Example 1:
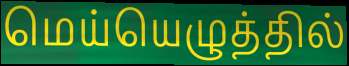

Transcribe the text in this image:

மெய்யெழுத்தில்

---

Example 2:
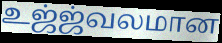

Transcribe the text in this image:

உஜ்ஜ்வலமான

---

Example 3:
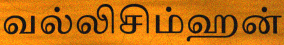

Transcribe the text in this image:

வல்லிசிம்ஹன்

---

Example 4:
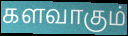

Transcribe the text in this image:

களவாகும்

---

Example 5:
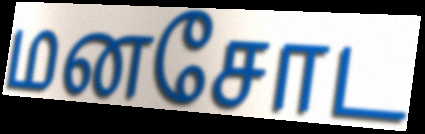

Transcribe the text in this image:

மனசோட